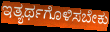
ಇತ್ಯರ್ಥಗೊಳಿಸಬೇಕು